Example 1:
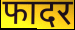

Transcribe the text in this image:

फादर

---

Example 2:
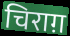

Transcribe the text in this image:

चिराग़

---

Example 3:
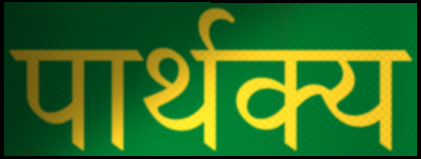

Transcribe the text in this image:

पार्थक्य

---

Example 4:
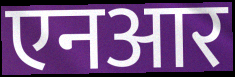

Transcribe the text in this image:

एनआर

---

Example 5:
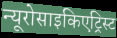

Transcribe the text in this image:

न्यूरोसाइकिएट्रिस्ट